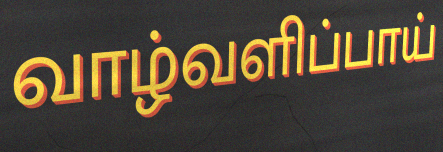
வாழ்வளிப்பாய்